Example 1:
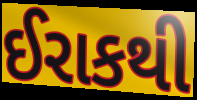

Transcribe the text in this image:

ઈરાકથી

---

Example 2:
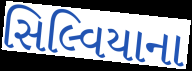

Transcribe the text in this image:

સિલ્વિયાના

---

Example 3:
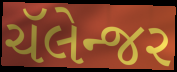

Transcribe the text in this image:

ચૅલેન્જર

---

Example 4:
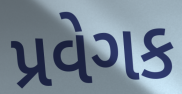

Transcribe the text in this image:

પ્રવેગક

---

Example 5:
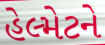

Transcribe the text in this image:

હેલ્મેટને